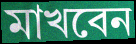
মাখবেন